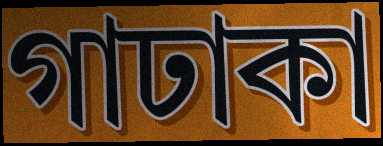
গাঢাকা